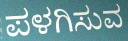
ಪಳಗಿಸುವ